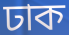
ঢাক